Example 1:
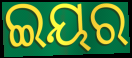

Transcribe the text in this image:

ଇୟର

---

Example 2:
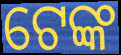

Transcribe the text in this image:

ଟେଙ୍କ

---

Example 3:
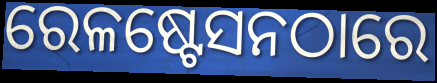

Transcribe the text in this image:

ରେଳଷ୍ଟେସନଠାରେ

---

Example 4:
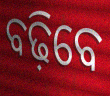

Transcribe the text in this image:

ବଢ଼ିବେ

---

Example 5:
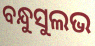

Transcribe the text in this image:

ବନ୍ଧୁସୁଲଭ